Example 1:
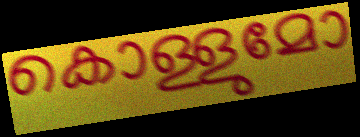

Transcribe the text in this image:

കൊള്ളുമോ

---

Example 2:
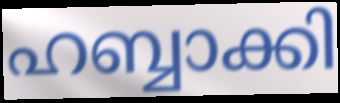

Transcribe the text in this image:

ഹബ്ബാക്കി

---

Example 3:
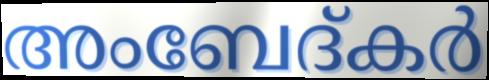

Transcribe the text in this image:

അംബേദ്കർ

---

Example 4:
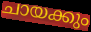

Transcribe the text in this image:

ചായക്കും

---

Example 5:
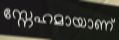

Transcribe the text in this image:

സ്നേഹമായാണ്